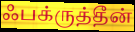
ஃபக்ருத்தீன்